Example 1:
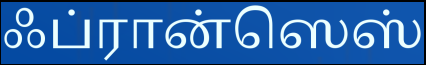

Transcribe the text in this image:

ஃப்ரான்ஸெஸ்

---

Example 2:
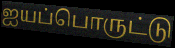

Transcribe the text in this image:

ஐயப்பொருட்டு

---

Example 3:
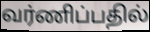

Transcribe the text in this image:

வர்ணிப்பதில்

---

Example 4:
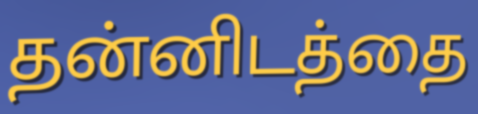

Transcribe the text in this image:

தன்னிடத்தை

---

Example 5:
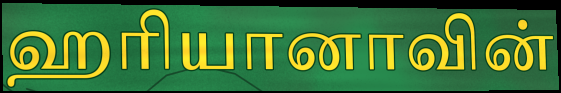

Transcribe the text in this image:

ஹரியானாவின்